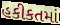
હકીકતમાં